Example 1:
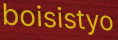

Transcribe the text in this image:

boisistyo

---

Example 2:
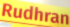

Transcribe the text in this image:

Rudhran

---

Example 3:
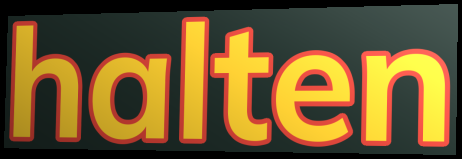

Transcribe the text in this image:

halten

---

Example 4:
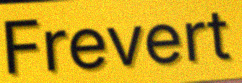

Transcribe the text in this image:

Frevert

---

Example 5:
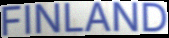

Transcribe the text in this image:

FINLAND